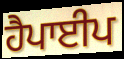
ਹੈਪਾਈਪ